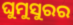
ଘୁମୁସୁରର